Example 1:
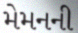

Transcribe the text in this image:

મેમનની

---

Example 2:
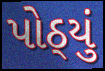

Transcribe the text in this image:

પોઠ્યું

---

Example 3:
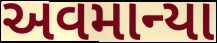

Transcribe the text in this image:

અવમાન્યા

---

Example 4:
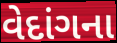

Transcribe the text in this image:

વેદાંગના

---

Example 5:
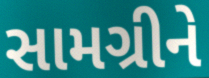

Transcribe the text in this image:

સામગ્રીને